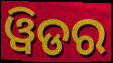
ୱିଡର